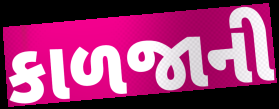
કાળજાની